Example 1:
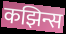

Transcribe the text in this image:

कझिन्स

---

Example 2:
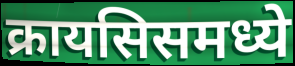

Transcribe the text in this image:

क्रायसिसमध्ये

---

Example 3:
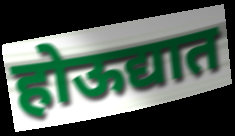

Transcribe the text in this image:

होऊद्यात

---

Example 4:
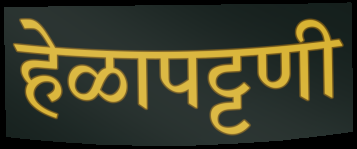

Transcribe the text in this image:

हेळापट्टणी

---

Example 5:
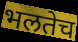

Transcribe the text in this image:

भलतेच